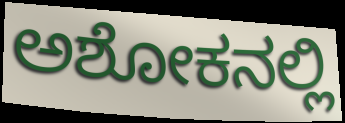
ಅಶೋಕನಲ್ಲಿ